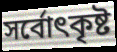
সৰ্বোৎকৃষ্ট